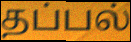
தப்பல்